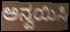
ಅನ್ವಯಿಸಿ